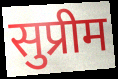
सुप्रीम